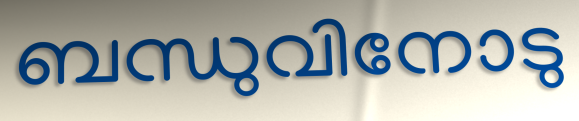
ബന്ധുവിനോടു